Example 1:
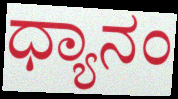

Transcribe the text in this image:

ಧ್ಯಾನಂ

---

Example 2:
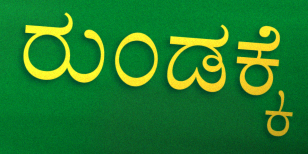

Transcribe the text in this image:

ರುಂಡಕ್ಕೆ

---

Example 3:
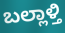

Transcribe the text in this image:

ಬಲ್ಲಾಳ್ತಿ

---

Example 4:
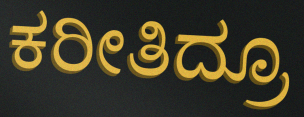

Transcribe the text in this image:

ಕರೀತಿದ್ರೂ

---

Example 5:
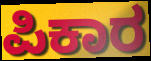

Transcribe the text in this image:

ಪಿಕಾರ